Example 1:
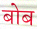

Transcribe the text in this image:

बोब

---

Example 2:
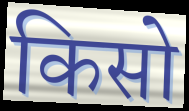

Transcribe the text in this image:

किसो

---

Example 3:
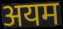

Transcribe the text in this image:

अयम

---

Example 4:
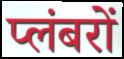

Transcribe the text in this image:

प्लंबरों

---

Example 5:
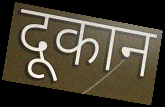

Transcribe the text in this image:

दूकान